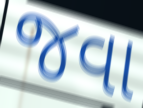
જવા